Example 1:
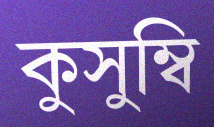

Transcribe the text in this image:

কুসুম্বি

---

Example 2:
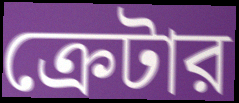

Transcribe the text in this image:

ক্রেটার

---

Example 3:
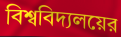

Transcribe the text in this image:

বিশ্ববিদ্যলয়ের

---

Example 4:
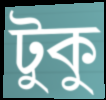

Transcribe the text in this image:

টুকু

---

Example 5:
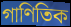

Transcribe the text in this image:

গাণিতিক